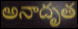
అనాదృత